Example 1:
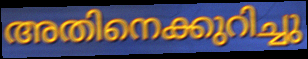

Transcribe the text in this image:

അതിനെക്കുറിച്ചു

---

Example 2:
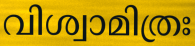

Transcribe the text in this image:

വിശ്വാമിത്രഃ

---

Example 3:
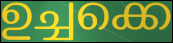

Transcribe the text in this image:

ഉച്ചക്കെ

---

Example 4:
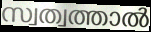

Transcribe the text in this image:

സ്വത്വത്താൽ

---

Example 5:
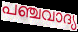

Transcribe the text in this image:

പഞ്ചവാദ്യ